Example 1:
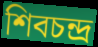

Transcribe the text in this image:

শিবচন্দ্র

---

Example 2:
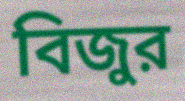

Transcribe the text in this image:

বিজুর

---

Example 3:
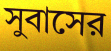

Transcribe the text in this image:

সুবাসের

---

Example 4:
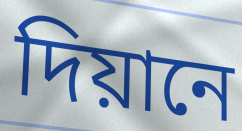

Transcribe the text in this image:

দিয়ানে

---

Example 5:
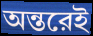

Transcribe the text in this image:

অন্তরেই